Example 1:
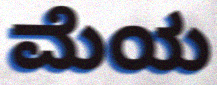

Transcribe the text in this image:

ಮೆಯ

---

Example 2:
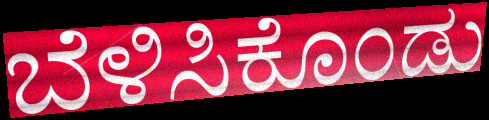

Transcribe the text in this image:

ಬೆಳಿಸಿಕೊಂಡು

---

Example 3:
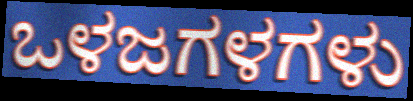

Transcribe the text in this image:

ಒಳಜಗಳಗಳು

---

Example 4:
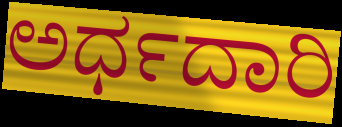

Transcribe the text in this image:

ಅರ್ಧದಾರಿ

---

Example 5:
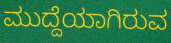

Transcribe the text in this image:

ಮುದ್ದೆಯಾಗಿರುವ